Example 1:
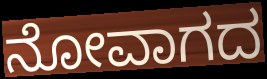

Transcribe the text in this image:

ನೋವಾಗದ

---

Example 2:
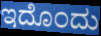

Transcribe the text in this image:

ಇದೊಂದು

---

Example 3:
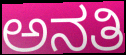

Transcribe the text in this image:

ಅನತಿ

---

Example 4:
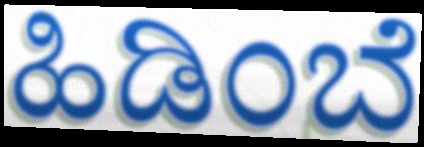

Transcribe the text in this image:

ಹಿಡಿಂಬೆ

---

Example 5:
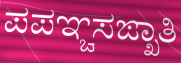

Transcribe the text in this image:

ಪಪಞ್ಚಸಙ್ಖಾತಿ